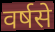
वर्षसे